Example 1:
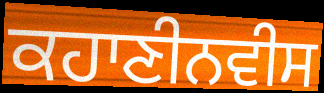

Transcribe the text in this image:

ਕਹਾਣੀਨਵੀਸ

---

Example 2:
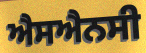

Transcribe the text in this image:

ਐਸਐਨਸੀ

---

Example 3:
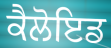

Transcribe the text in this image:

ਕੈਲੋਇਡ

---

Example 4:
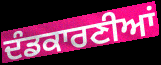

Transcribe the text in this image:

ਦੰਡਕਾਰਣੀਆਂ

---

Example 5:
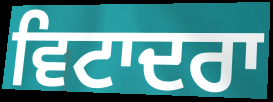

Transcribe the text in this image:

ਵਿਟਾਦਰਾ